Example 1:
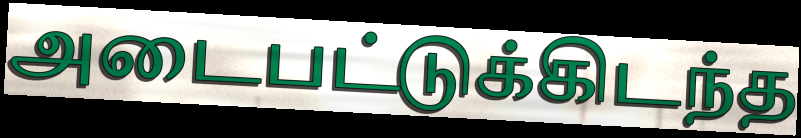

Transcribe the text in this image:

அடைபட்டுக்கிடந்த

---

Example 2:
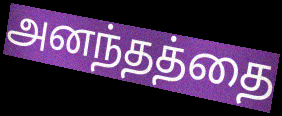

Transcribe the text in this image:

அனந்தத்தை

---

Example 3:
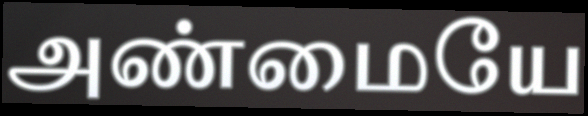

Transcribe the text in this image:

அண்மையே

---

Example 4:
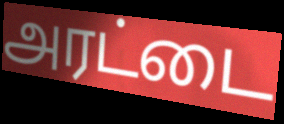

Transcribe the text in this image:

அரட்டை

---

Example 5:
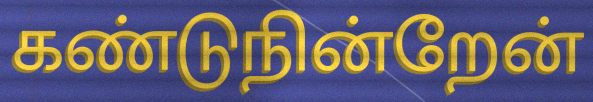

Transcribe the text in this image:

கண்டுநின்றேன்